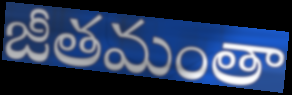
జీతమంతా